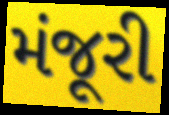
મંજૂરી